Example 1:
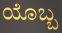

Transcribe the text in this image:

ಯೊಬ್ಬ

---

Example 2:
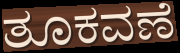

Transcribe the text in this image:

ತೂಕವಣೆ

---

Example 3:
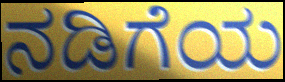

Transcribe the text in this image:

ನಡಿಗೆಯ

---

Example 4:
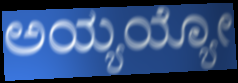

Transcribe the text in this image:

ಅಯ್ಯಯ್ಯೋ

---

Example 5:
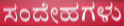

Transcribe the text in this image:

ಸಂದೇಹಗಳು